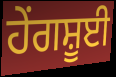
ਹੇਂਗਸ਼ੂਈ